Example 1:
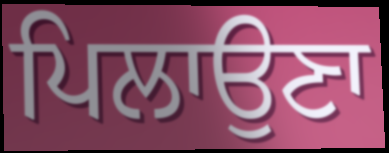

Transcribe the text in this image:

ਪਿਲਾਉਣਾ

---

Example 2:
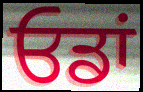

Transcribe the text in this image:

ਓਡਾਂ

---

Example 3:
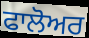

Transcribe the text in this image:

ਫਾਲੋਅਰ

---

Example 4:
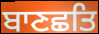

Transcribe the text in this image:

ਬਾਣਛਤਿ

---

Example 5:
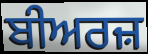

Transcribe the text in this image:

ਬੀਅਰਜ਼